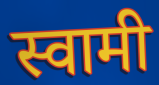
स्वामी